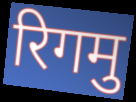
रिगमु